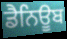
ਡੈਨਿਊਬ